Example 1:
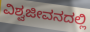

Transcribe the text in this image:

ವಿಶ್ವಜೀವನದಲ್ಲಿ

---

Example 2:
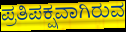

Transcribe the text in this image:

ಪ್ರತಿಪಕ್ಷವಾಗಿರುವ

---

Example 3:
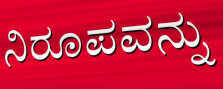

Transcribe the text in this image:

ನಿರೂಪವನ್ನು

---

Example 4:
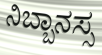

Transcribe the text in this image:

ನಿಬ್ಬಾನಸ್ಸ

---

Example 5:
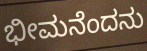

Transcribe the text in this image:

ಭೀಮನೆಂದನು